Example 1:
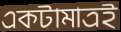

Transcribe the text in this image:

একটামাত্রই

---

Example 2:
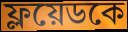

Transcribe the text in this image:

ফ্লয়েডকে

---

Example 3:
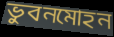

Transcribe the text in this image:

ভুবনমোহন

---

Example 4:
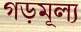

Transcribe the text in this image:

গড়মূল্য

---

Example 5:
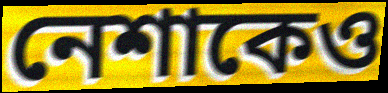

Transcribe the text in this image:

নেশাকেও